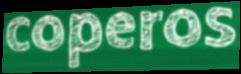
coperos